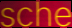
sche